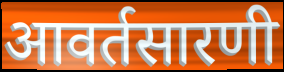
आवर्तसारणी